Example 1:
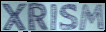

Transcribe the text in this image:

XRISM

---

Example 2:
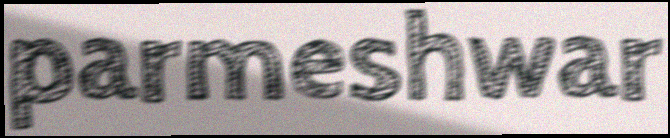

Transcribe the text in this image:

parmeshwar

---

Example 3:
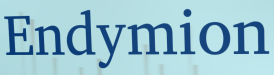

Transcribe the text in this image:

Endymion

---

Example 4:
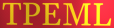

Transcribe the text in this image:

TPEML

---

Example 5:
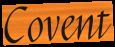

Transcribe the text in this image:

Covent